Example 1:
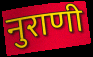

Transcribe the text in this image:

नुराणी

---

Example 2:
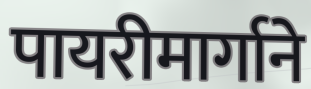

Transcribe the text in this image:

पायरीमार्गाने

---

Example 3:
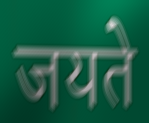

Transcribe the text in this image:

जयते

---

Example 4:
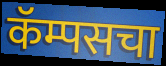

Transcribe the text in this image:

कॅम्पसचा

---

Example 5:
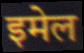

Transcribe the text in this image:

इमेल